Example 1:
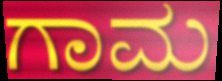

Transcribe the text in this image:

ಗಾಮ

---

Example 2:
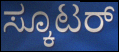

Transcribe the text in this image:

ಸ್ಕೂಟರ್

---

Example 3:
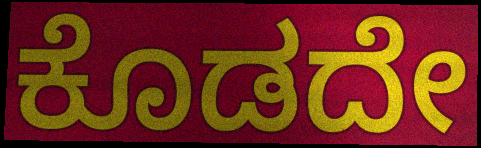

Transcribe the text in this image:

ಕೊಡದೇ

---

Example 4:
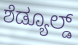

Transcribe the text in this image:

ಶೆಡ್ಯೂಲ್ಡ್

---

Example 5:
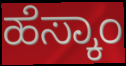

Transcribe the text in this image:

ಹೆಸ್ಕಾಂ